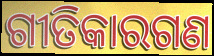
ଗୀତିକାରଗଣ